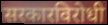
सरकारविरोधी